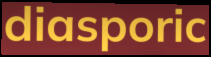
diasporic